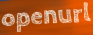
openurl